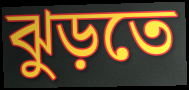
ঝুড়তে